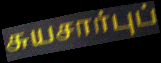
சுயசார்புப்